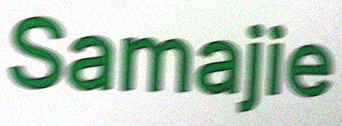
Samajie